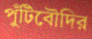
পুঁটিবৌদির